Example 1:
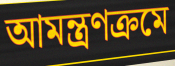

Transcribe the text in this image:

আমন্ত্ৰণক্ৰমে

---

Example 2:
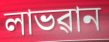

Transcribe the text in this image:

লাভৱান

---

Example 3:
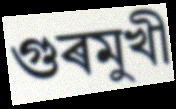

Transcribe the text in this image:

গুৰমুখী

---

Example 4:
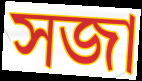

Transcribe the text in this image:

সজা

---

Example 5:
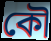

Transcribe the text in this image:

কৌ